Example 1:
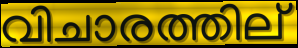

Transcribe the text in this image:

വിചാരത്തില്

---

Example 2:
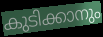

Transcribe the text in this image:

കുടിക്കാനും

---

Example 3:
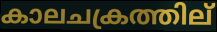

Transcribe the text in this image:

കാലചക്രത്തില്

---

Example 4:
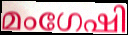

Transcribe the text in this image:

മംഗേഷി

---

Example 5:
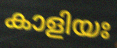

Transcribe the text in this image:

കാളിയഃ